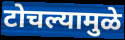
टोचल्यामुळे